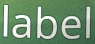
label